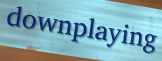
downplaying